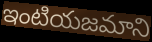
ఇంటియజమాని